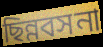
ছিন্নবসনা